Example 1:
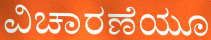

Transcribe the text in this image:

ವಿಚಾರಣೆಯೂ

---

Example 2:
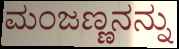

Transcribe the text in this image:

ಮಂಜಣ್ಣನನ್ನು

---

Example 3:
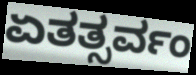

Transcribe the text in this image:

ಏತತ್ಸರ್ವಂ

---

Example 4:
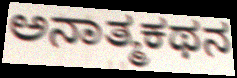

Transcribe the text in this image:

ಅನಾತ್ಮಕಥನ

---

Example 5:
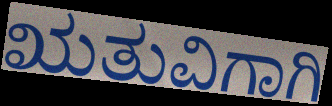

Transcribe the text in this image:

ಋತುವಿಗಾಗಿ